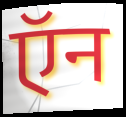
ऍन